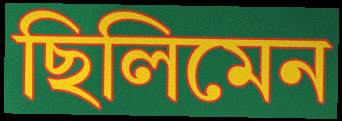
ছিলিমেন